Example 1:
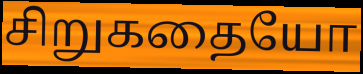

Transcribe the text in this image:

சிறுகதையோ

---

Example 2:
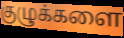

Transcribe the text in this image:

குழுக்களை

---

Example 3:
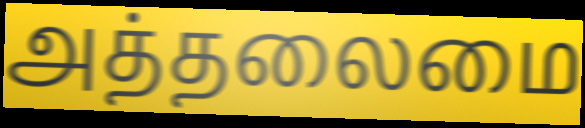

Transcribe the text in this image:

அத்தலைமை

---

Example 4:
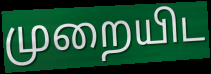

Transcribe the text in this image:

முறையிட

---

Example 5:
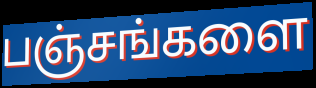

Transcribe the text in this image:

பஞ்சங்களை